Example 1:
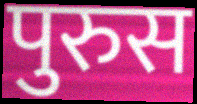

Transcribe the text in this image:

पुरुस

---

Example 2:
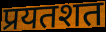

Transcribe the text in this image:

प्रयतशत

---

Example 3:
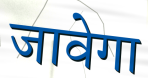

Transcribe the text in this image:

जावेगा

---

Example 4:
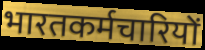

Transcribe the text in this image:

भारतकर्मचारियों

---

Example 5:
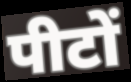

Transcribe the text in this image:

पीटों